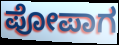
ಪೋಪಾಗ